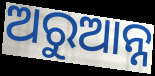
ଅରୁଆନ୍ନ